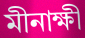
মীনাক্ষী